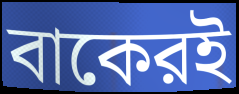
বাকেরই